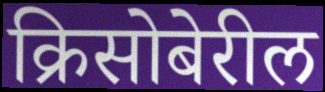
क्रिसोबेरील